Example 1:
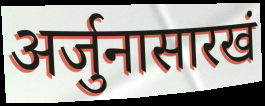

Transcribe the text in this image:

अर्जुनासारखं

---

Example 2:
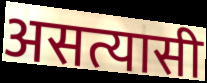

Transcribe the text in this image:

असत्यासी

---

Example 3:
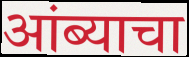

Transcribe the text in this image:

आंब्याचा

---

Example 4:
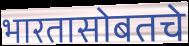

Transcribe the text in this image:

भारतासोबतचे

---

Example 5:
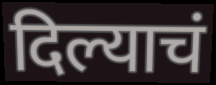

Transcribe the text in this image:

दिल्याचं